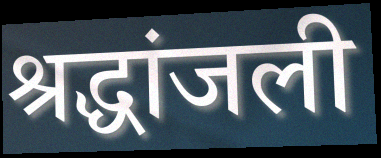
श्रद्धांजली